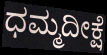
ಧಮ್ಮದೀಕ್ಷೆ